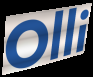
Olli